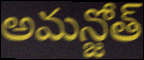
అమన్జోత్